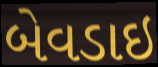
બેવડાઇ